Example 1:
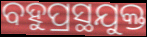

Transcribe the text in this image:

ବହୁପ୍ରସ୍ଥଯୁକ୍ତ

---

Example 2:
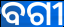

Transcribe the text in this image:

ବଗୀ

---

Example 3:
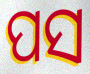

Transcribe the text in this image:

ପସ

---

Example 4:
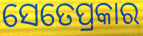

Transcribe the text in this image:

ସେତେପ୍ରକାର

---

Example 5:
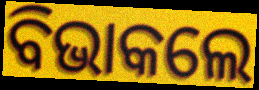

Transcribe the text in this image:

ବିଭାକଲେ